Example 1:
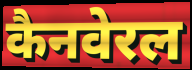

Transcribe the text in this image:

कैनवेरल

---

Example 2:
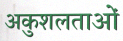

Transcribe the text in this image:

अकुशलताओं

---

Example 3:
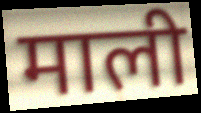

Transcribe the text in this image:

माली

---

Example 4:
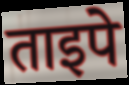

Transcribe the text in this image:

ताइपे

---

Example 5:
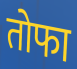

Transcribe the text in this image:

तोफा